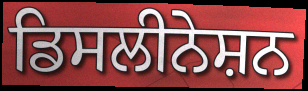
ਡਿਸਲੀਨੇਸ਼ਨ